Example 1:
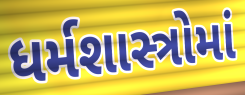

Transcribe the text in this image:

ધર્મશાસ્ત્રોમાં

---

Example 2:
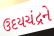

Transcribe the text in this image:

ઉદયચંદ્રને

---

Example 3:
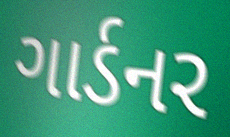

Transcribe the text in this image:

ગાર્ડનર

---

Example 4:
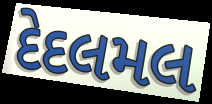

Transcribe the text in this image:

દેદલમલ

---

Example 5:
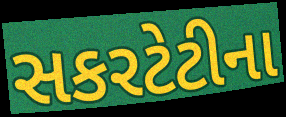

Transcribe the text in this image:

સકરટેટીના